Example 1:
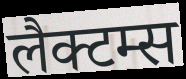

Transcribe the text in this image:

लैक्टम्स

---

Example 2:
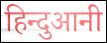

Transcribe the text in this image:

हिन्दुआनी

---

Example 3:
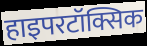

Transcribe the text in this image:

हाइपरटॉक्सिक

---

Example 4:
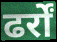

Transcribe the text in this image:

ढर्रों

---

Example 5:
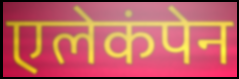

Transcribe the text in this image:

एलेकंपेन